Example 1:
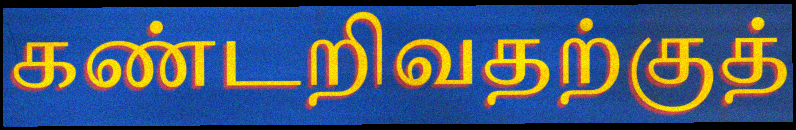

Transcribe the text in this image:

கண்டறிவதற்குத்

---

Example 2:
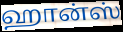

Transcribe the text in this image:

ஹான்ஸ்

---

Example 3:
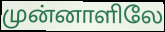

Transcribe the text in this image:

முன்னாளிலே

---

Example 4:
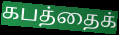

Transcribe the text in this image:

கபத்தைக்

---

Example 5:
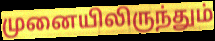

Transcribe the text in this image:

முனையிலிருந்தும்